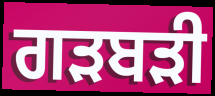
ਗੜਬੜੀ